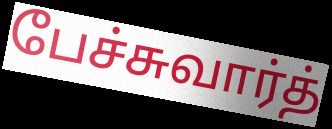
பேச்சுவார்த்